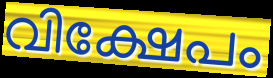
വിക്ഷേപം